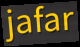
jafar